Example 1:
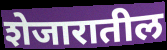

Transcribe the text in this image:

शेजारातील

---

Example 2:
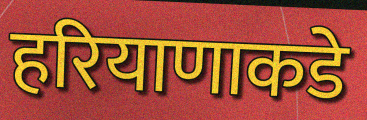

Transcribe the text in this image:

हरियाणाकडे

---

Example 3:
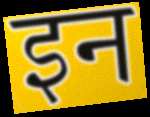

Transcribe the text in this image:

इन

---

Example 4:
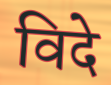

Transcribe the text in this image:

विदे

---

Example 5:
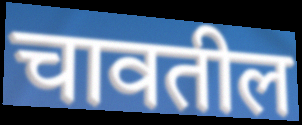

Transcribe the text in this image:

चावतील